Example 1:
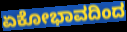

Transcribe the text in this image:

ಏಕೋಭಾವದಿಂದ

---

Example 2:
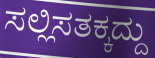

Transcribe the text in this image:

ಸಲ್ಲಿಸತಕ್ಕದ್ದು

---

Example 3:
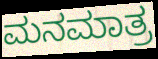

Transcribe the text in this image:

ಮನಮಾತ್ರ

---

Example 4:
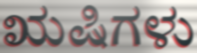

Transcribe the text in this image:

ಋಷಿಗಳು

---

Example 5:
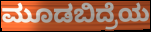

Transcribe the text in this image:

ಮೂಡಬಿದ್ರೆಯ